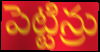
పెట్టిన్రు